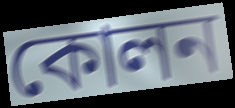
কোলন